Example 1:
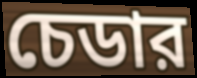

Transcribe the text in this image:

চেডার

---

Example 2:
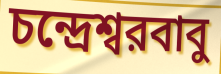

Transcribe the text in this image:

চন্দ্রেশ্বরবাবু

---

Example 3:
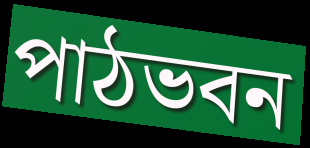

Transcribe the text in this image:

পাঠভবন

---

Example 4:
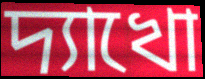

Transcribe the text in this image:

দ্যাখো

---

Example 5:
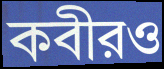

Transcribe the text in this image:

কবীরও